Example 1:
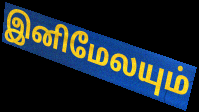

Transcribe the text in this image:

இனிமேலயும்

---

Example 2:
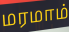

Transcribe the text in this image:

மரமாம்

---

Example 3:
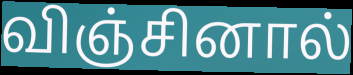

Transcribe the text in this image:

விஞ்சினால்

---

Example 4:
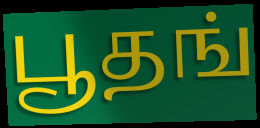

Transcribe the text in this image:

பூதங்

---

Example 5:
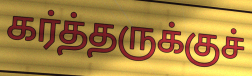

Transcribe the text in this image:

கர்த்தருக்குச்